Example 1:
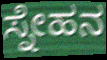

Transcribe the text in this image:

ಸ್ನೇಹನ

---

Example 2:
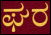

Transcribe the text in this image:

ಘರ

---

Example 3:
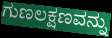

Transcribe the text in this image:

ಗುಣಲಕ್ಷಣವನ್ನು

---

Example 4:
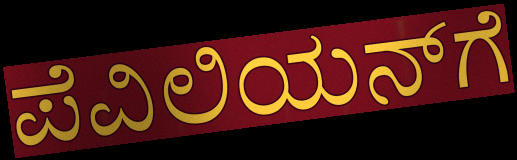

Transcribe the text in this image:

ಪೆವಿಲಿಯನ್‌ಗೆ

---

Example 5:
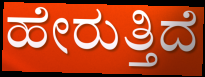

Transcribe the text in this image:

ಹೇರುತ್ತಿದೆ